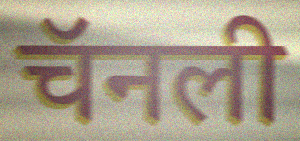
चॅनली